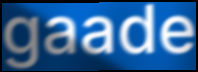
gaade